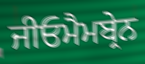
ਜੀਓਮੈਮਬ੍ਰੇਨ